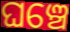
ଘଞ୍ଚେ